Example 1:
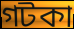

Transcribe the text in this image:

গটকা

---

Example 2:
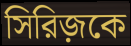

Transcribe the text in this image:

সিরিজ়কে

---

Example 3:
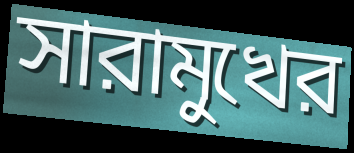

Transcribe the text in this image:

সারামুখের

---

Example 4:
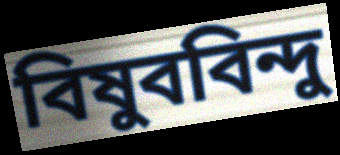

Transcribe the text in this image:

বিষুববিন্দু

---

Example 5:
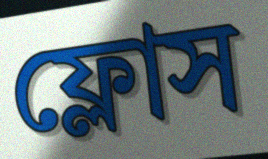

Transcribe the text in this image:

ফ্লোস